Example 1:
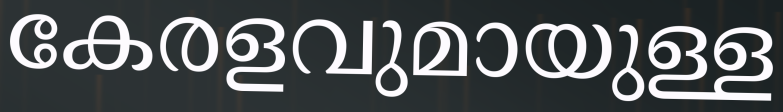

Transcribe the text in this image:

കേരളവുമായുള്ള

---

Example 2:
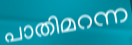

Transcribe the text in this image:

പാതിമറന്ന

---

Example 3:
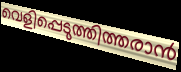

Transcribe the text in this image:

വെളിപ്പെടുത്തിത്തരാൻ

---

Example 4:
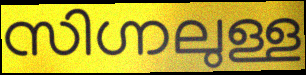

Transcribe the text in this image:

സിഗ്നലുള്ള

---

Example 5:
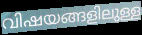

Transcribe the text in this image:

വിഷയങ്ങളിലുള്ള